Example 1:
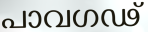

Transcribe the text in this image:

പാവഗഢ്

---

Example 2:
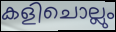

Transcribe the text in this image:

കളിചൊല്ലും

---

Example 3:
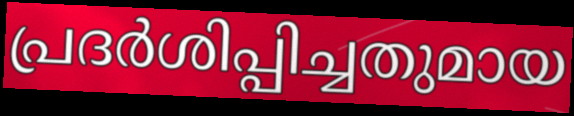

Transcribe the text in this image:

പ്രദർശിപ്പിച്ചതുമായ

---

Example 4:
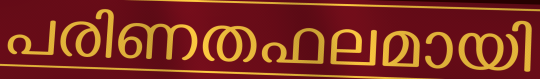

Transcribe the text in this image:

പരിണതഫലമായി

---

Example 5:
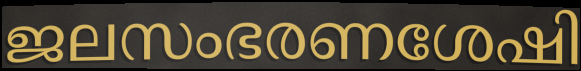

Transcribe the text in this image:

ജലസംഭരണശേഷി